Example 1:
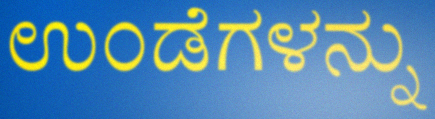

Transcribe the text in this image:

ಉಂಡೆಗಳನ್ನು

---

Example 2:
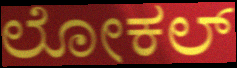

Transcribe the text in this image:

ಲೋಕಲ್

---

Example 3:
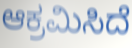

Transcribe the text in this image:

ಆಕ್ರಮಿಸಿದೆ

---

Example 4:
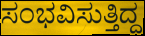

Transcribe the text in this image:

ಸಂಭವಿಸುತ್ತಿದ್ದ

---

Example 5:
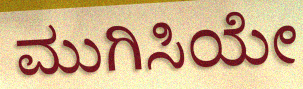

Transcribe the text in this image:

ಮುಗಿಸಿಯೇ